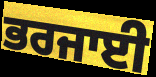
ਭਰਜਾਈ